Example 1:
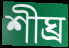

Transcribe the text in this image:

শীঘ্র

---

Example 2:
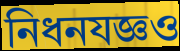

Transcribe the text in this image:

নিধনযজ্ঞও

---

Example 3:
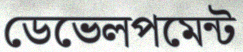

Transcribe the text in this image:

ডেভেলপমেন্ট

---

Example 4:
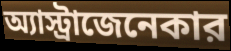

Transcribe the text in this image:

অ্যাস্ট্রাজেনেকার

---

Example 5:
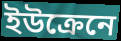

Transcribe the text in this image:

ইউক্রেনে